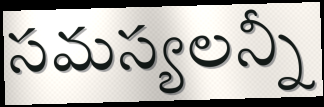
సమస్యలన్నీ